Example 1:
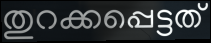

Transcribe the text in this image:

തുറക്കപ്പെട്ടത്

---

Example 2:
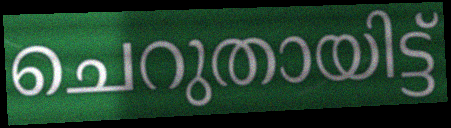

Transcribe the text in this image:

ചെറുതായിട്ട്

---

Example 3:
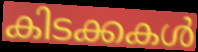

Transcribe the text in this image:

കിടക്കകൾ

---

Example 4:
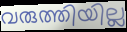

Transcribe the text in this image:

വരുത്തിയില്ല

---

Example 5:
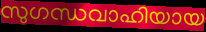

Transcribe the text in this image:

സുഗന്ധവാഹിയായ